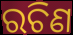
ରଚିଣ